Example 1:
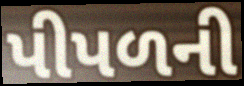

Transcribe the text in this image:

પીપળની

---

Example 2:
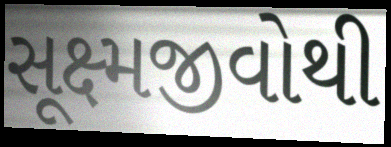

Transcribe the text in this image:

સૂક્ષ્મજીવોથી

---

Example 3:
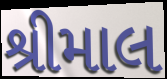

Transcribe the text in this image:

શ્રીમાલ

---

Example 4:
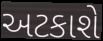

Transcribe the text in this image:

અટકાશે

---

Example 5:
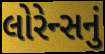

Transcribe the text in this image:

લોરેન્સનું